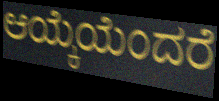
ಆಯ್ಕೆಯೆಂದರೆ